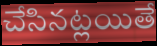
చేసినట్లయితే